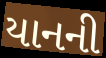
યાનની